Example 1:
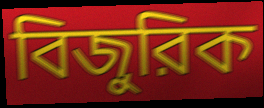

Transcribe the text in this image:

বিজুরিক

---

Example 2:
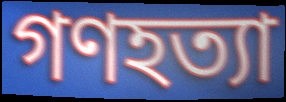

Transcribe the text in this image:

গণহত্যা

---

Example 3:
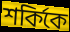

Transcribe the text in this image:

শর্কিকে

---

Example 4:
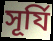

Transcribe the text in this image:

সূর্যি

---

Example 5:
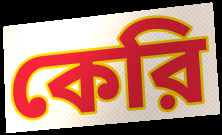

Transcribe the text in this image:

কেরি